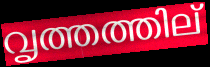
വൃത്തത്തില്